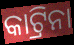
କାଟ୍ରିନା